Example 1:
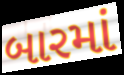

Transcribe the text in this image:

બારમાં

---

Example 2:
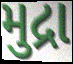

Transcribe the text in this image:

મુદ્રા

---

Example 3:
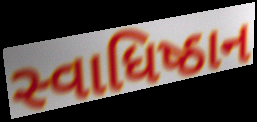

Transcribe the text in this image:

સ્વાધિષ્ઠાન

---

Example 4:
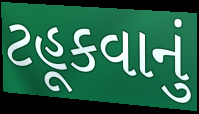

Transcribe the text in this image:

ટહૂકવાનું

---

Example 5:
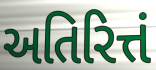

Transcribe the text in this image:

અતિરિત્તં